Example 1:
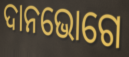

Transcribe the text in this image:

ଦାନଭୋଗେ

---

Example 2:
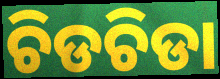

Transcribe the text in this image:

ଚିଡଚିଡା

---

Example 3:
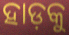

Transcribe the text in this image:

ହାଡ଼କୁ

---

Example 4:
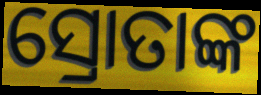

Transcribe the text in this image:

ସ୍ରୋତାଙ୍କ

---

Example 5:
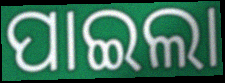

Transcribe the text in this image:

ପାଇଲା